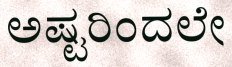
ಅಷ್ಟರಿಂದಲೇ